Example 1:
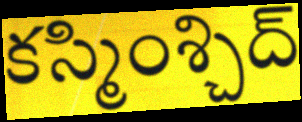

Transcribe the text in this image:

కస్మింశ్చిద్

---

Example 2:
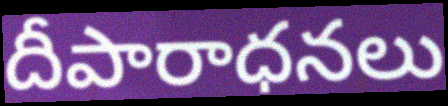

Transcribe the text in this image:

దీపారాధనలు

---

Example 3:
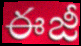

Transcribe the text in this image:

ఈజీ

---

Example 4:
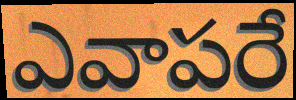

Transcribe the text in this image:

ఎవాపరే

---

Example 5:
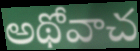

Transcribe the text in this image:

అథోవాచ